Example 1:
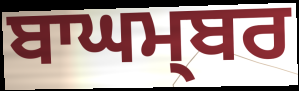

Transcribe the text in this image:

ਬਾਘਮ੍ਬਰ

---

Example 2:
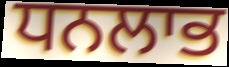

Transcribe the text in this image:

ਧਨਲਾਭ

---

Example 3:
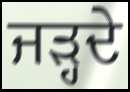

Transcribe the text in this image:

ਜੜ੍ਹਦੇ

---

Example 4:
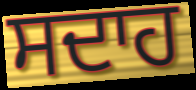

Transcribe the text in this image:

ਸਦਾਹ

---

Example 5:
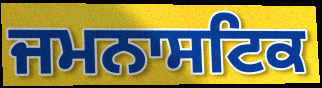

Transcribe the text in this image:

ਜਮਨਾਸਟਿਕ